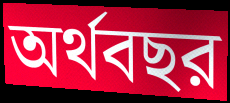
অর্থবছর